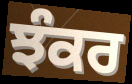
ਝੰਕਰ